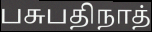
பசுபதிநாத்